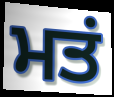
ਮਤਂ